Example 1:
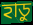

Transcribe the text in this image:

হাডু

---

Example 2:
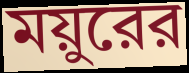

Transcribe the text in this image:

ময়ুরের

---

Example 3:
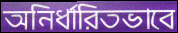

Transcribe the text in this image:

অনির্ধারিতভাবে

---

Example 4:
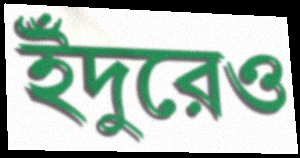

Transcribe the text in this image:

ইঁদুরেও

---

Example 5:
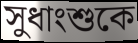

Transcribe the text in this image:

সুধাংশুকে